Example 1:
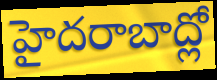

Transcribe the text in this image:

హైదరాబాద్లో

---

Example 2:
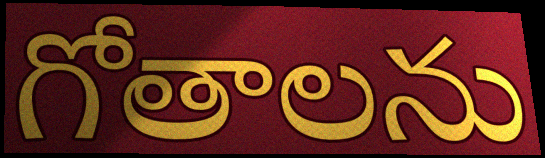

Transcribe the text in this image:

గోతాలను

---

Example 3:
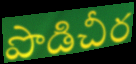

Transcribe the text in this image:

పొడిచీర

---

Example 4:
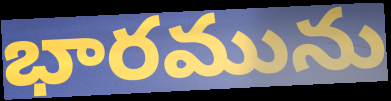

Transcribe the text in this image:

భారమును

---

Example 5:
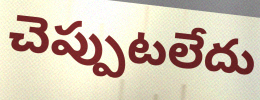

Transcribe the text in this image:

చెప్పుటలేదు